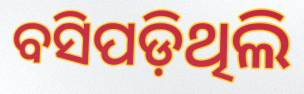
ବସିପଡ଼ିଥିଲି